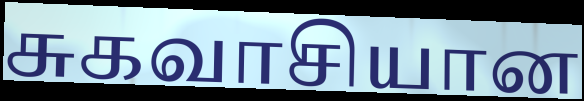
சுகவாசியான